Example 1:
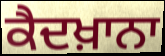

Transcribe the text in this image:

ਕੈਦਖ਼ਾਨਾ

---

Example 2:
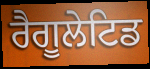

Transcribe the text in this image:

ਰੈਗੂਲੇਟਿਡ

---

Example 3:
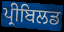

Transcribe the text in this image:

ਪ੍ਰੀਬਿਲਡ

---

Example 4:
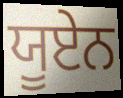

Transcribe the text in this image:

ਯੂਏਨ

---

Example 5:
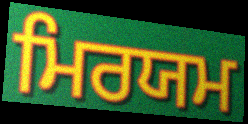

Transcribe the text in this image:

ਮਿਰਯਮ